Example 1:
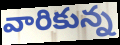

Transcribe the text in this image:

వారికున్న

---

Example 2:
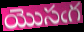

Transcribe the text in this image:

యొసఁగ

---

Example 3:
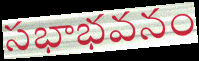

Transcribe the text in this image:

సభాభవనం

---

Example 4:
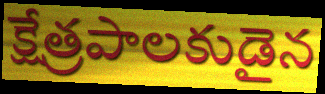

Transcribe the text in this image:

క్షేత్రపాలకుడైన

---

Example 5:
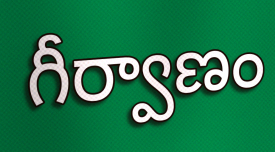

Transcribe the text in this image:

గీర్వాణం